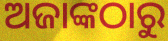
ଅଜାଙ୍କଠାରୁ